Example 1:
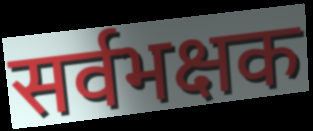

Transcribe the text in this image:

सर्वभक्षक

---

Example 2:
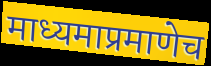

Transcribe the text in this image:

माध्यमाप्रमाणेच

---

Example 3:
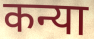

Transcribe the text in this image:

कन्या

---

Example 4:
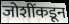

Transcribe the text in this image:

जोशींकडून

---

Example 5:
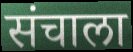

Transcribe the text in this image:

संचाला